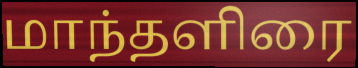
மாந்தளிரை